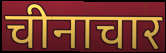
चीनाचार